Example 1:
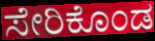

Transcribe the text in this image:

ಸೇರಿಕೊಂಡ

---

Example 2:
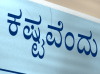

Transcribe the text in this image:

ಕಷ್ಟವೆಂದು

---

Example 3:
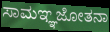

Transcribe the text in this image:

ಸಾಮಞ್ಞಜೋತನಾ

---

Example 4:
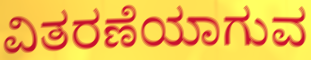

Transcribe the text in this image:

ವಿತರಣೆಯಾಗುವ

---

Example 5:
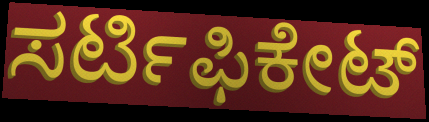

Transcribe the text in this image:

ಸರ್ಟಿಫಿಕೇಟ್